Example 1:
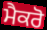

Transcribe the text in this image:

ਮੈਕਰੋ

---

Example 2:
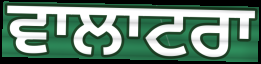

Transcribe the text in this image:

ਵਾਲਾਟਰਾ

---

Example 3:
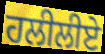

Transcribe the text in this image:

ਹਲੀਲੀਏ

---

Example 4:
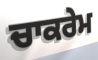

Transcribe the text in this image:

ਚਾਕਰੇਮ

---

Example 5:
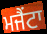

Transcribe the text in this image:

ਮਜੈਂਟਾ